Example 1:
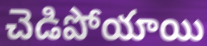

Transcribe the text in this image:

చెడిపోయాయి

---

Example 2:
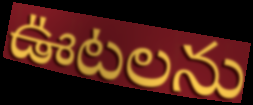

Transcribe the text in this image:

ఊటలను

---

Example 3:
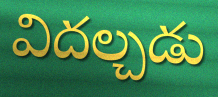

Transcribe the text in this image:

విదల్చడు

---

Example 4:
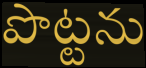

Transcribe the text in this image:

పొట్టను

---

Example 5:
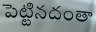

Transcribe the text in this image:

పెట్టినదంతా